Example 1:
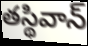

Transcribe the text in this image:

తస్థివాన్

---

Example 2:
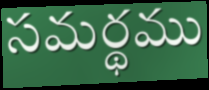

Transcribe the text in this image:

సమర్థము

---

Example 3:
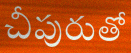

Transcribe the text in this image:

చీపురుతో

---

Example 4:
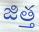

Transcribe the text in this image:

జిత్త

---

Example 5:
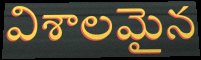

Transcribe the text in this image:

విశాలమైన